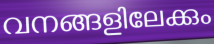
വനങ്ങളിലേക്കും